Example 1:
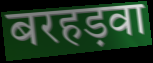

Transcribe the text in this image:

बरहड़वा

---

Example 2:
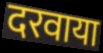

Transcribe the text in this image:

दरवाया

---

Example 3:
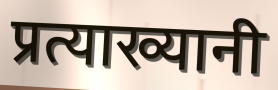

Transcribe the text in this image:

प्रत्याख्यानी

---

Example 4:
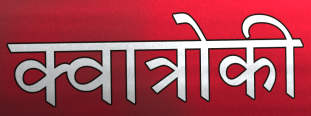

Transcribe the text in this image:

क्वात्रोकी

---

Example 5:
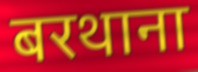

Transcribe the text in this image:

बरथाना